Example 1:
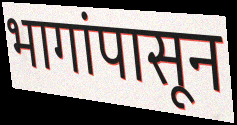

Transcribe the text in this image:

भागांपासून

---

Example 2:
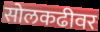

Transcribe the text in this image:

सोलकढीवर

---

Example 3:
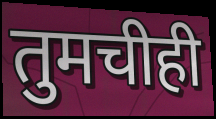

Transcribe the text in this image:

तुमचीही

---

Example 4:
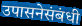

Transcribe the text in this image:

उपासनेसंबंधी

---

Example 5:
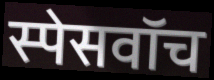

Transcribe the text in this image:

स्पेसवॉच